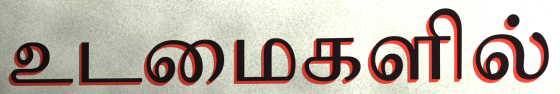
உடமைகளில்